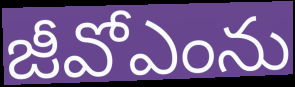
జీవోఎంను